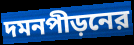
দমনপীড়নের